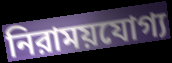
নিরাময়যোগ্য